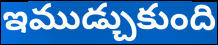
ఇముడ్చుకుంది